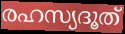
രഹസ്യദൂത്